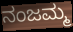
ನಂಜಮ್ಮ